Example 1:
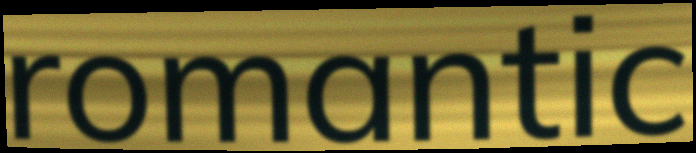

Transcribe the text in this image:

romantic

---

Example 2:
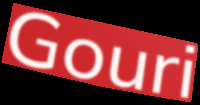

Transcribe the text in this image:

Gouri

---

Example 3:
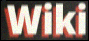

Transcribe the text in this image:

Wiki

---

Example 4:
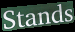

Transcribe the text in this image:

Stands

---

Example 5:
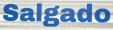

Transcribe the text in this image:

Salgado